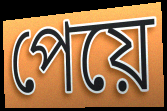
পেয়ে